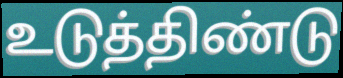
உடுத்திண்டு